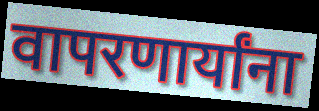
वापरणार्यांना